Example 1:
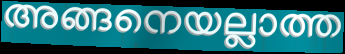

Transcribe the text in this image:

അങ്ങനെയല്ലാത്ത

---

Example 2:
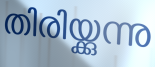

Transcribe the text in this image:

തിരിയ്ക്കുന്നു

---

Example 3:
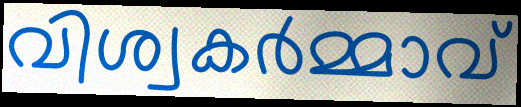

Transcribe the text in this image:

വിശ്വകർമ്മാവ്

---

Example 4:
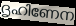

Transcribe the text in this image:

ദൃഹിണേന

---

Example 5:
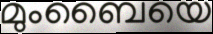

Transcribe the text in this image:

മുംബൈയെ